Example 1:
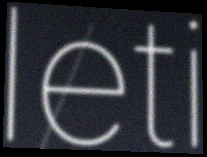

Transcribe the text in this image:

leti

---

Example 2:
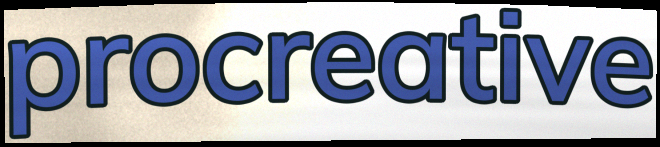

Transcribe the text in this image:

procreative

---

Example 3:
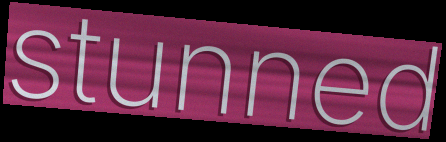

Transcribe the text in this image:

stunned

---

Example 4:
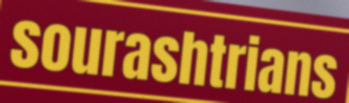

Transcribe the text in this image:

sourashtrians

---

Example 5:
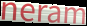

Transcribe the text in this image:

neram